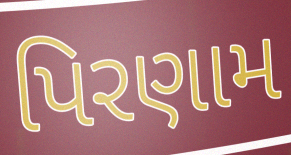
પિરણામ